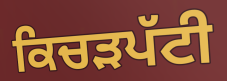
ਕਿਚੜਪੱਟੀ